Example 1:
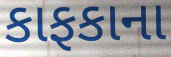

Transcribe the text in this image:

કાફકાના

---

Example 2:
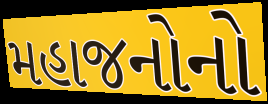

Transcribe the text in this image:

મહાજનોનો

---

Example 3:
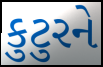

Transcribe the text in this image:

કુટુરને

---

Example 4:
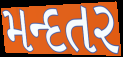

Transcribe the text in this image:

મન્દતર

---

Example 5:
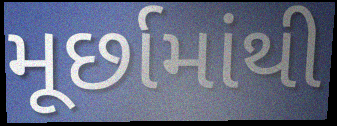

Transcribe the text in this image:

મૂર્છામાંથી